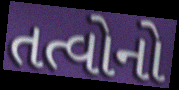
તત્વોનો